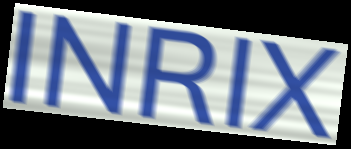
INRIX